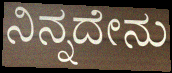
ನಿನ್ನದೇನು